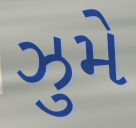
ઝુમે